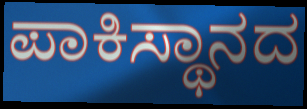
ಪಾಕಿಸ್ಥಾನದ